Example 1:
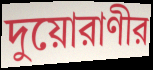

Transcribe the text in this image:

দুয়োরাণীর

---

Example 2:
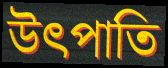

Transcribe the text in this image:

উৎপাতি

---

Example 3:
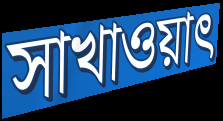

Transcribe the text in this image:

সাখাওয়াৎ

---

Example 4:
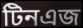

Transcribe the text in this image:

টিনএজ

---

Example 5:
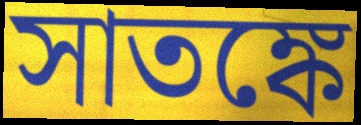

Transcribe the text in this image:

সাতঙ্কে